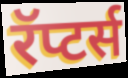
रॅप्टर्स